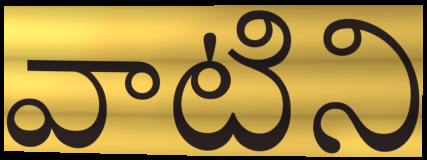
వాటిని